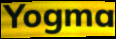
Yogma